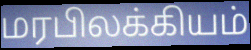
மரபிலக்கியம்